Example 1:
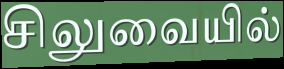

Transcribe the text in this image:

சிலுவையில்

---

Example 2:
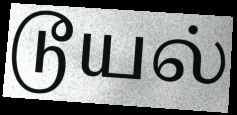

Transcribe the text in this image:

டூயல்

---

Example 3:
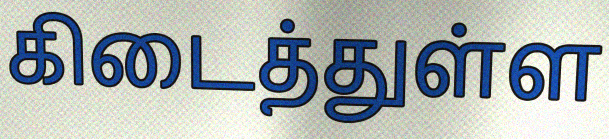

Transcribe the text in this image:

கிடைத்துள்ள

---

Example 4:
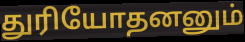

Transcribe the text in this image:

துரியோதனனும்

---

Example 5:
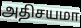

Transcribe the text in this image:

அதிசயமா